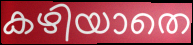
കഴിയാതെ